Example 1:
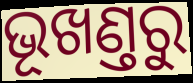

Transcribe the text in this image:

ଭୂଖଣ୍ତରୁ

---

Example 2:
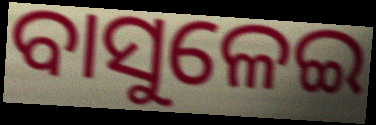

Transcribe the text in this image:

ବାସୁଳେଇ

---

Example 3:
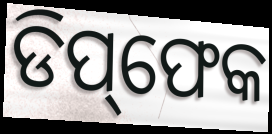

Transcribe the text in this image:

ଡିପ୍‌ଫେକ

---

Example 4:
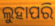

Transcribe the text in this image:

ଲୁହାପରି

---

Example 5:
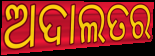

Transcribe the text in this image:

ଅଦାଲତର